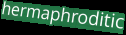
hermaphroditic